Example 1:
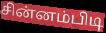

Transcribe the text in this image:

சின்னம்பிடி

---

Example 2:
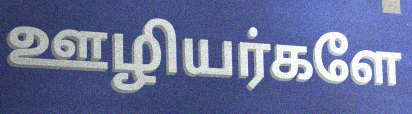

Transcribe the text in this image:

ஊழியர்களே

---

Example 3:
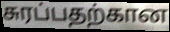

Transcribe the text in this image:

சுரப்பதற்கான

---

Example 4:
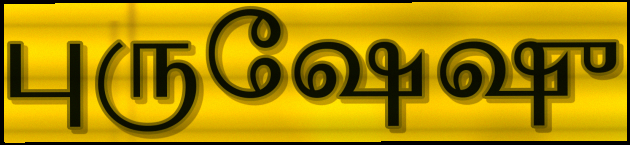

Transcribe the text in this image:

புருஷேஷு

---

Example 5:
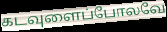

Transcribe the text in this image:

கடவுளைப்போலவே